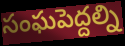
సంఘపెద్దల్ని